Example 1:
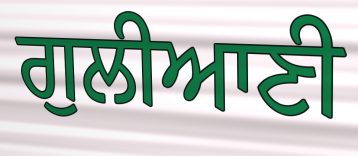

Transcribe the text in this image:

ਗੁਲੀਆਣੀ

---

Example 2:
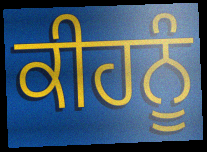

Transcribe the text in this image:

ਕੀਹਨੂੰ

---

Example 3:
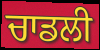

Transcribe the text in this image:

ਚਾਡਲੀ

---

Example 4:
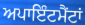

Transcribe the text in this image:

ਅਪਾਇੰਟਮੈਂਟਾਂ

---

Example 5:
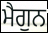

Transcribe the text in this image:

ਮੈਗੁਨ